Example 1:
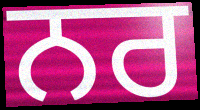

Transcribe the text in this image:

ਨਰ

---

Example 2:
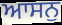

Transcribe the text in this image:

ਆਸਨੁ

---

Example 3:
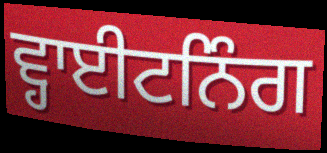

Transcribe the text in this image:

ਵ੍ਹਾਈਟਨਿੰਗ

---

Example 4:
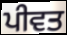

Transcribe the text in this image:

ਪੀਵਤ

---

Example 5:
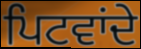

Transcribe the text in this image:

ਪਿਟਵਾਂਦੇ